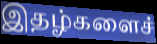
இதழ்களைச்